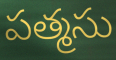
పత్మసు